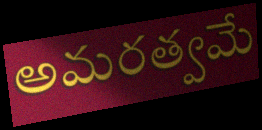
అమరత్వమే